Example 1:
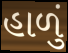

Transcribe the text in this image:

હાળું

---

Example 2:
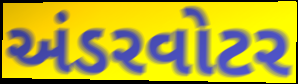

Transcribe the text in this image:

અંડરવોટર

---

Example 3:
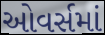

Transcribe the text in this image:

ઓવર્સમાં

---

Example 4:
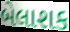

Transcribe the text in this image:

બેલાશક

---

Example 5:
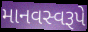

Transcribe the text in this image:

માનવસ્વરૂપે